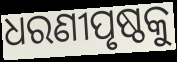
ଧରଣୀପୃଷ୍ଠକୁ